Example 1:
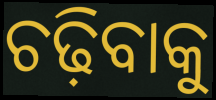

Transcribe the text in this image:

ଚଢ଼ିବାକୁ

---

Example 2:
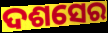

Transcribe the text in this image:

ଦଶସେର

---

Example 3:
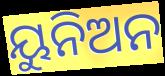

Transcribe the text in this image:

ୟୁନିଅନ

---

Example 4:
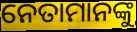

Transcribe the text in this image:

ନେତାମାନଙ୍କୁ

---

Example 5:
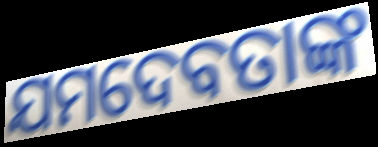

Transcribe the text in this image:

ଯମଦେବତାଙ୍କ